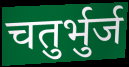
चतुर्भुर्ज